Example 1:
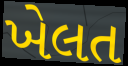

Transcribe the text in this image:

ખેલત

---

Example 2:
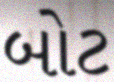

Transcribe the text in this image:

બોટ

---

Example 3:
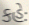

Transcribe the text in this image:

કહેઃ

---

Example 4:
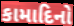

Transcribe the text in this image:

કામાદિનો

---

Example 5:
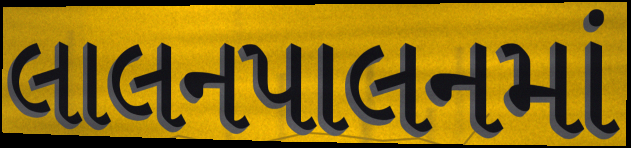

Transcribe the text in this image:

લાલનપાલનમાં